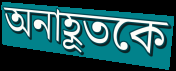
অনাহূতকে